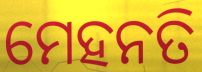
ମେହନତି